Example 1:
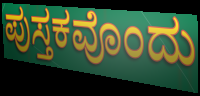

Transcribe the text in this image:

ಪುಸ್ತಕವೊಂದು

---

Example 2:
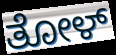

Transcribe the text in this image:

ತೋಳ್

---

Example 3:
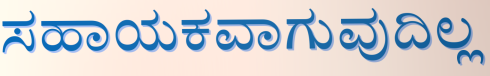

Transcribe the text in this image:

ಸಹಾಯಕವಾಗುವುದಿಲ್ಲ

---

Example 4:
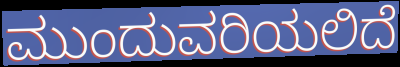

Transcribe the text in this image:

ಮುಂದುವರಿಯಲಿದೆ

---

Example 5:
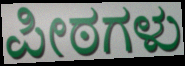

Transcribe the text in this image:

ಪೀಠಗಳು